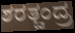
ಶರತ್ಚಂದ್ರ